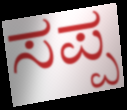
ಸಪ್ಪ